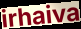
irhaiva